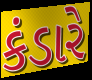
કંડારે